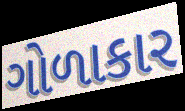
ગોળાકાર